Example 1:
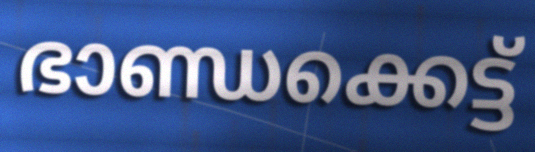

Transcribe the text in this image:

ഭാണ്ഡക്കെട്ട്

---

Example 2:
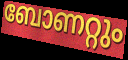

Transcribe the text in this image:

ബോണറ്റും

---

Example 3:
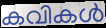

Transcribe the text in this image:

കവികൾ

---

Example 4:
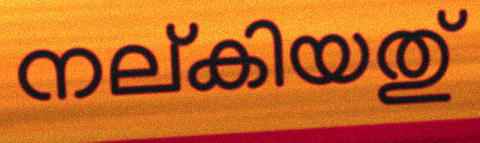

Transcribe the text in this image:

നല്കിയതു്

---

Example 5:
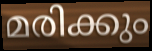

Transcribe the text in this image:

മരിക്കും